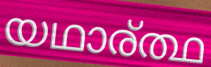
യഥാര്ത്ഥ